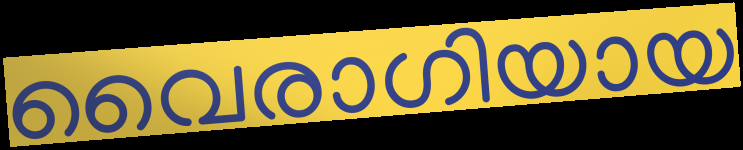
വൈരാഗിയായ